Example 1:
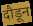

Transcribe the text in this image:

दौडून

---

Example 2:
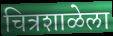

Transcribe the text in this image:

चित्रशाळेला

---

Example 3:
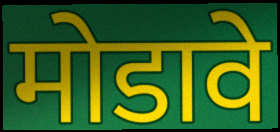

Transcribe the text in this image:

मोडावे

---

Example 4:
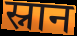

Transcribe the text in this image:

स्नान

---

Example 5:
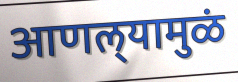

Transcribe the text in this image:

आणल्यामुळं